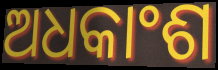
ଅଧକାଂଶ